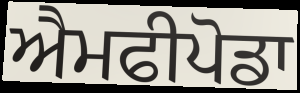
ਐਮਫੀਪੋਡਾ